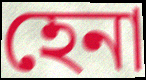
হেনা